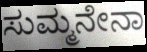
ಸುಮ್ಮನೇನಾ